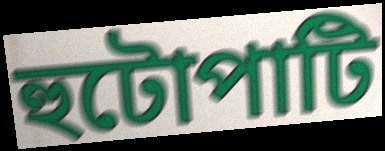
হুটোপাটি